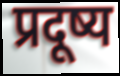
प्रदूष्य